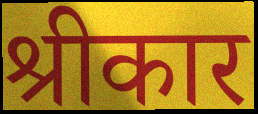
श्रीकार